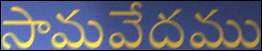
సామవేదము